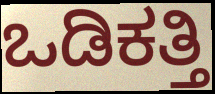
ಒಡಿಕತ್ತಿ